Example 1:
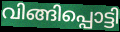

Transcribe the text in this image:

വിങ്ങിപ്പൊട്ടി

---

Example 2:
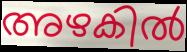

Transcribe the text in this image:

അഴകിൽ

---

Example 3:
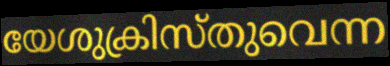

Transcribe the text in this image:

യേശുക്രിസ്തുവെന്ന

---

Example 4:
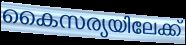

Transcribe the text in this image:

കൈസര്യയിലേക്ക്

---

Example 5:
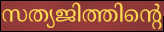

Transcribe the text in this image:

സത്യജിത്തിന്റെ